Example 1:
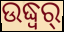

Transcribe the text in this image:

ଉଦ୍ଧ୍ୱର୍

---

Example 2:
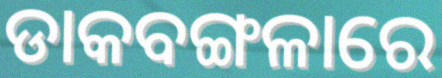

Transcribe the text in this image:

ଡାକବଙ୍ଗଳାରେ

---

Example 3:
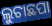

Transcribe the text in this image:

ଲୁଚାଛପା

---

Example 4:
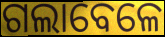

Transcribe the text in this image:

ଗଲାବେଳେ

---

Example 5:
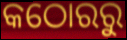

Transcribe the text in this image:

କଠୋରରୁ